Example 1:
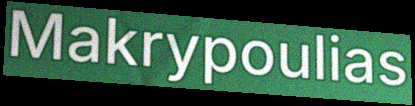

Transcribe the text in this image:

Makrypoulias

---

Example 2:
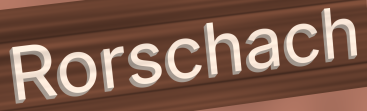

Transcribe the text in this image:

Rorschach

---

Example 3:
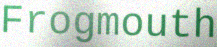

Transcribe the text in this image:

Frogmouth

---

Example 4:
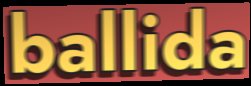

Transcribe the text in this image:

ballida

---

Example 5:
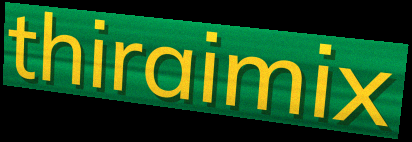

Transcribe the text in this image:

thiraimix